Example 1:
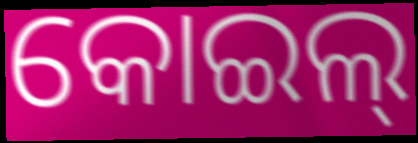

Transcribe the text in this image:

କୋଇଲ୍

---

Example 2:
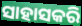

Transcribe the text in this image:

ସାହାସକରି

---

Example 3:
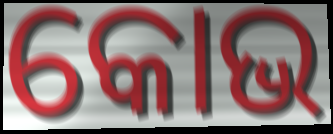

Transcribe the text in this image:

କୋଭ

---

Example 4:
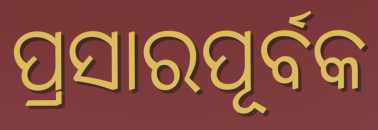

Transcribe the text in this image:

ପ୍ରସାରପୂର୍ବକ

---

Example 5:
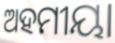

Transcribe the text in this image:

ଅହମୀୟା